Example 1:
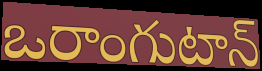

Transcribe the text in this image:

ఒరాంగుటాన్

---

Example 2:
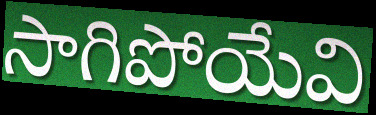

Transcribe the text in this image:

సాగిపోయేవి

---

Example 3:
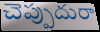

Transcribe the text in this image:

చెప్పుదురా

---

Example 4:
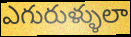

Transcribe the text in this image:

ఎగురుళ్ళులా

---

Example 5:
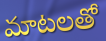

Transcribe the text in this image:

మాటలతో